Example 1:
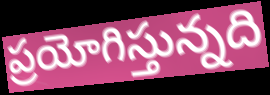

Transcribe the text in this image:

ప్రయోగిస్తున్నది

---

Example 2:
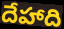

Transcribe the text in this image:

దేహాది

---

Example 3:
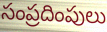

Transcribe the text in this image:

సంప్రదింపులు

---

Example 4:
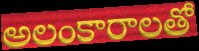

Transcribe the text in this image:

అలంకారాలతో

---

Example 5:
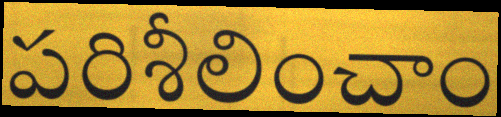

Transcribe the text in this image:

పరిశీలించాం